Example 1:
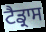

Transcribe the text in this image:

ਟੈਡ੍ਰਾਸ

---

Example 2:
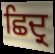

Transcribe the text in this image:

ਛਿਦ੍ਰ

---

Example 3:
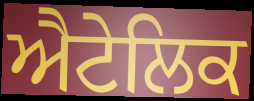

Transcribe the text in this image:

ਐਟੇਲਿਕ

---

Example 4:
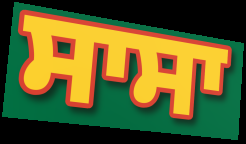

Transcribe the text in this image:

ਸਾਸਾ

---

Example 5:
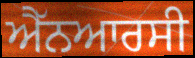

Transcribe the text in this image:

ਐੱਨਆਰਸੀ